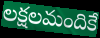
లక్షలమందికే